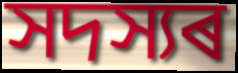
সদস্যৰ